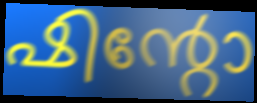
ഷിന്റോ